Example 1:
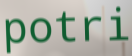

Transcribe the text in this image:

potri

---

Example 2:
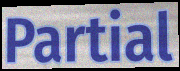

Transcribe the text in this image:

Partial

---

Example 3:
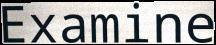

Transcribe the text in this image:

Examine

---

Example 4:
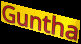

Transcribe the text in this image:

Guntha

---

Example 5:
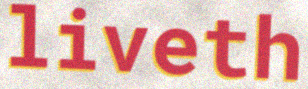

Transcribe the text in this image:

liveth